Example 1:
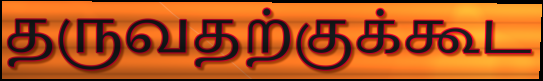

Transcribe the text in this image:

தருவதற்குக்கூட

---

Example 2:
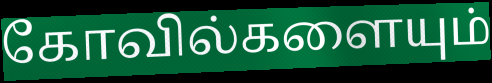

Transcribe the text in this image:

கோவில்களையும்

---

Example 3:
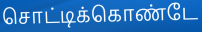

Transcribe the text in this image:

சொட்டிக்கொண்டே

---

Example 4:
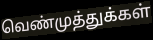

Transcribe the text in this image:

வெண்முத்துக்கள்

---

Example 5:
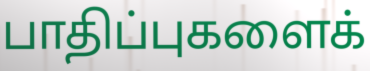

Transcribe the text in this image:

பாதிப்புகளைக்